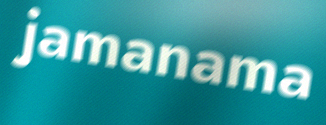
jamanama